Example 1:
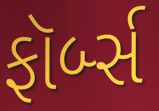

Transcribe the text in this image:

ફૉર્બ્સ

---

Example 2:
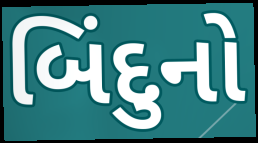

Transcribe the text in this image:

બિંદુનો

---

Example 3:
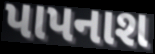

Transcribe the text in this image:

પાપનાશ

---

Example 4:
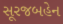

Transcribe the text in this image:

સૂરજબહેન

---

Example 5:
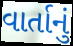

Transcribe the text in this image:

વાર્તાનું